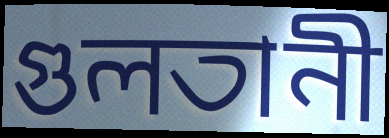
গুলতানী